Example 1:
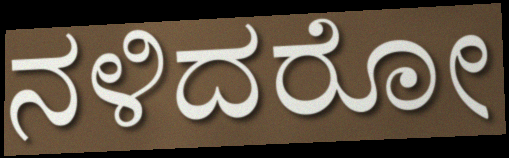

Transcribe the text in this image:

ನಳಿದರೋ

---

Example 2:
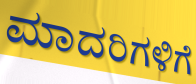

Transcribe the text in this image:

ಮಾದರಿಗಳಿಗೆ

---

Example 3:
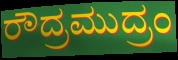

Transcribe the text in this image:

ರೌದ್ರಮುದ್ರಂ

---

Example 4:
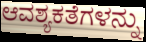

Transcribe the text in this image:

ಆವಶ್ಯಕತೆಗಳನ್ನು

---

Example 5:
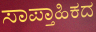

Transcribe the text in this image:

ಸಾಪ್ತಾಹಿಕದ